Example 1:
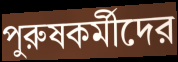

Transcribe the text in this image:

পুরুষকর্মীদের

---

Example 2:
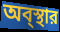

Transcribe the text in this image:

অব্স্থার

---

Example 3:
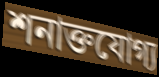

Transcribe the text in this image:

শনাক্তযোগ্য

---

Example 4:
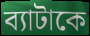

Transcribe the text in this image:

ব্যাটাকে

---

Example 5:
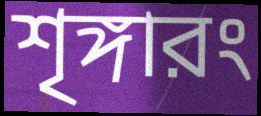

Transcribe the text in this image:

শৃঙ্গারং